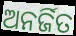
ଅନର୍ଜିତ